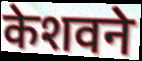
केशवने